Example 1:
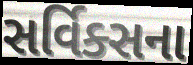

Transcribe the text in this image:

સર્વિક્સના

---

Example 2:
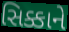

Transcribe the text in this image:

સિક્કાને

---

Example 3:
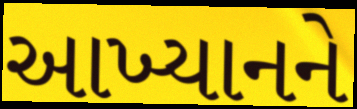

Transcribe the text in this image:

આખ્યાનને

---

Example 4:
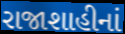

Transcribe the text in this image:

રાજાશાહીનાં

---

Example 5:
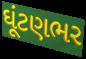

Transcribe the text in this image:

ઘૂંટણભર